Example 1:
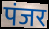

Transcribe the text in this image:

पंजर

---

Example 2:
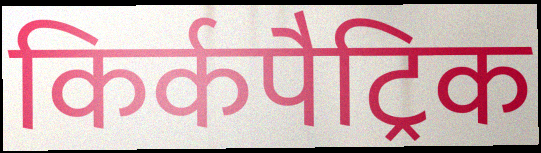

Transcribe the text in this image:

किर्कपैट्रिक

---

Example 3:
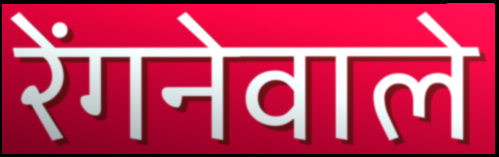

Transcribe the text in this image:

रेंगनेवाले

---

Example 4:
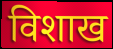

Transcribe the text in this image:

विशाख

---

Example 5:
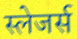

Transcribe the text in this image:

स्लेजर्स